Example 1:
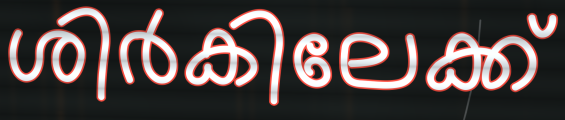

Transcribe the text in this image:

ശിർകിലേക്ക്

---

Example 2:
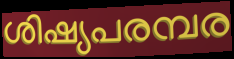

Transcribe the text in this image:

ശിഷ്യപരമ്പര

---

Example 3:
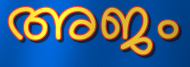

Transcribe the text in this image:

അജം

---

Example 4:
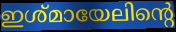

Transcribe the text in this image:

ഇശ്മായേലിന്റെ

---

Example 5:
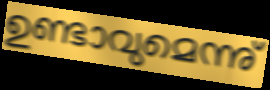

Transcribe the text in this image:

ഉണ്ടാവുമെന്നു്